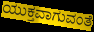
ಯುಕ್ತವಾಗುವಂತೆ